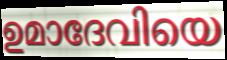
ഉമാദേവിയെ